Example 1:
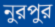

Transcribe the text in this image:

নুরপুর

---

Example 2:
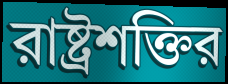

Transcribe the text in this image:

রাষ্ট্রশক্তির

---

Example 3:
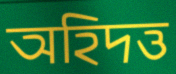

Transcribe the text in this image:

অহিদত্ত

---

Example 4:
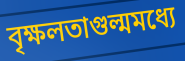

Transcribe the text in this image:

বৃক্ষলতাগুল্মমধ্যে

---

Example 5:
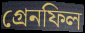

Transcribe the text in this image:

গ্রেনফিল